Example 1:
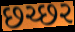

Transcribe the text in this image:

છચ્છર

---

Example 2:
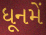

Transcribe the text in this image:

ધૂનમેં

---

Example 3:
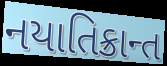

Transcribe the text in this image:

નયાતિક્રાન્ત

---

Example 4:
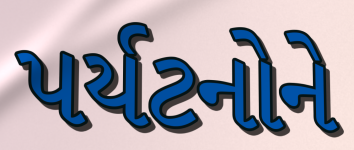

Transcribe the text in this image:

પર્યટનોને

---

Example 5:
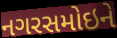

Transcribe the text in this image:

નગરસમોઇને